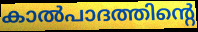
കാൽപാദത്തിന്റെ